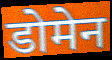
डोमेन